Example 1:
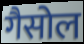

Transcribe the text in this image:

गैसोल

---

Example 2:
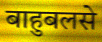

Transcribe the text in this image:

बाहुबलसे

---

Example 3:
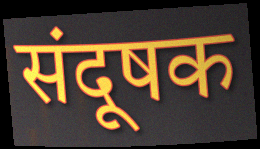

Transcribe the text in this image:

संदूषक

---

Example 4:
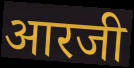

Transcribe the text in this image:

आरजी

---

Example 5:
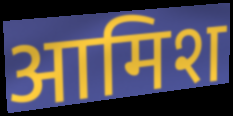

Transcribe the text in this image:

आमिश